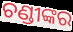
ଚଣ୍ଡୀଙ୍କର